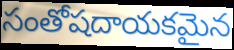
సంతోషదాయకమైన